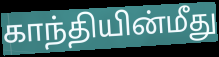
காந்தியின்மீது